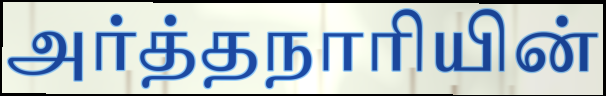
அர்த்தநாரியின்